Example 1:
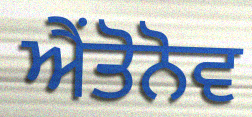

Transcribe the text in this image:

ਐਂਤੋਨੋਵ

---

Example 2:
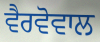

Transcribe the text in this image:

ਵੈਰਵੋਵਾਲ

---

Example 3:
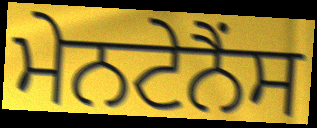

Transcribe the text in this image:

ਮੇਨਟੇਨੈਂਸ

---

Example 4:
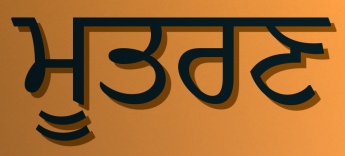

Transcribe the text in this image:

ਮੂਤਰਣ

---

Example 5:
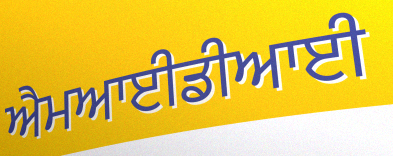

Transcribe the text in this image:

ਐਮਆਈਡੀਆਈ